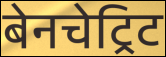
बेनचेट्रिट